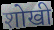
शोखी